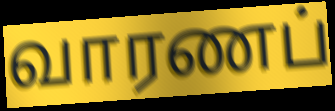
வாரணப்